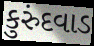
કુરુંદવાડ